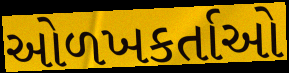
ઓળખકર્તાઓ